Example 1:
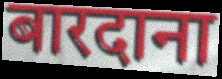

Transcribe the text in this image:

बारदाना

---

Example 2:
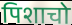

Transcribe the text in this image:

पिशाचो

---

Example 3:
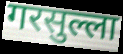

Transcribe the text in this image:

गरसुल्ला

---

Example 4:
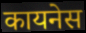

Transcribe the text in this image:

कायनेस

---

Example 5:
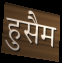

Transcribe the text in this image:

हुसैम